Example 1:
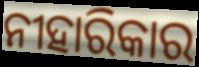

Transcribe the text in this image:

ନୀହାରିକାର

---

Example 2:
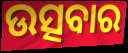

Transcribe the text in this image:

ଉତ୍ସବାର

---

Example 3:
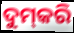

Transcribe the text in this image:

ଦୁମ୍‍କରି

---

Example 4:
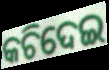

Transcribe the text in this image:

କଚିଦେଇ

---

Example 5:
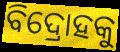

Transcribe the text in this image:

ବିଦ୍ରୋହକୁ